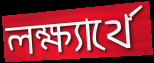
লক্ষ্যার্থে